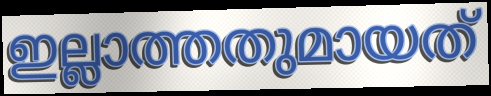
ഇല്ലാത്തതുമായത്